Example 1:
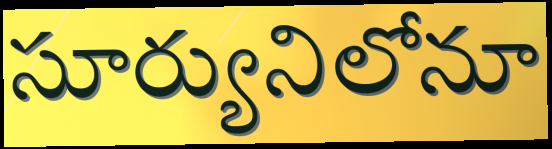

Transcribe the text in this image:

సూర్యునిలోనూ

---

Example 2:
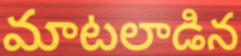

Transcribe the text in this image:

మాటలాడిన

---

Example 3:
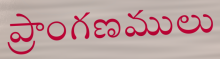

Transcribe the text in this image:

ప్రాంగణములు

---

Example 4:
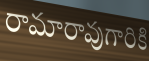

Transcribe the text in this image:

రామారావుగారికి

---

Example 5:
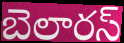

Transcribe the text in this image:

బెలారస్